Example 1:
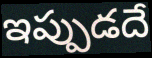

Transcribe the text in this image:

ఇప్పుడదే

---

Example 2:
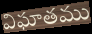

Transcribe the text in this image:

విఘాతము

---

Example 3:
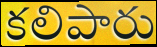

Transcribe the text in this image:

కలిపారు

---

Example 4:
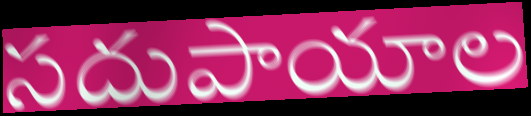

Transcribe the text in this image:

సదుపాయాల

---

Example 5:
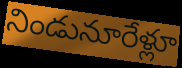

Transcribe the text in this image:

నిండునూరేళ్లూ